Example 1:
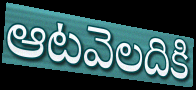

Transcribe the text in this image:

ఆటవెలదికి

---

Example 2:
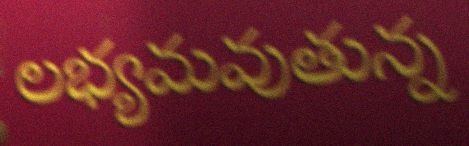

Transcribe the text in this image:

లభ్యమవుతున్న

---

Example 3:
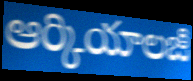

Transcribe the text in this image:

ఆర్కియాలజీ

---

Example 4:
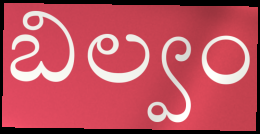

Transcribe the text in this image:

బిల్వం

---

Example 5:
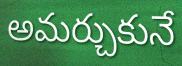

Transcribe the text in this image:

అమర్చుకునే